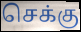
செக்கு